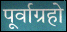
पूर्वाग्रहो